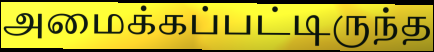
அமைக்கப்பட்டிருந்த